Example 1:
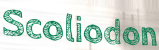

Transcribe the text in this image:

Scoliodon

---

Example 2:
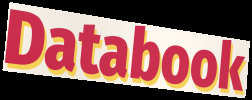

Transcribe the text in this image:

Databook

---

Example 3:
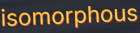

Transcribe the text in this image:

isomorphous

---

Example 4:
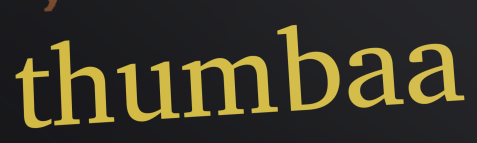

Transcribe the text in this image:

thumbaa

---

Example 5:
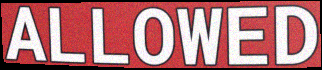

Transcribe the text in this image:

ALLOWED